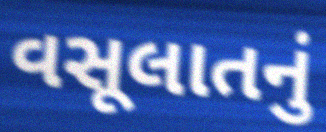
વસૂલાતનું